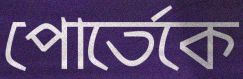
পোর্তেকে